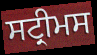
ਸਟ੍ਰੀਮਸ